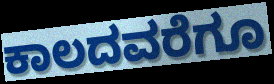
ಕಾಲದವರೆಗೂ